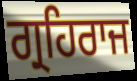
ਗ੍ਰਹਿਰਾਜ